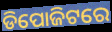
ଡିପୋଜିଟରେ